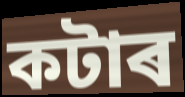
কটাৰ